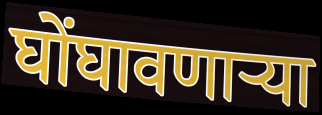
घोंघावणाऱ्या